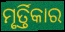
ମୃର୍ତ୍ତିକାର